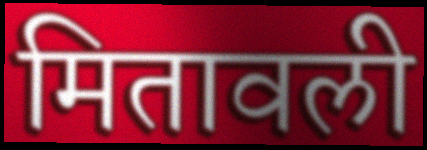
मितावली